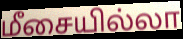
மீசையில்லா